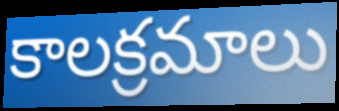
కాలక్రమాలు